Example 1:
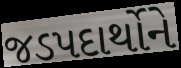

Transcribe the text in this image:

જડપદાર્થોને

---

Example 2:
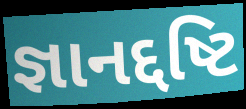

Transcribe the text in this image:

જ્ઞાનદ્દષ્ટિ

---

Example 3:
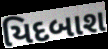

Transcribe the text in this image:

યિદબાશ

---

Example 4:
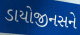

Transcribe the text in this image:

ડાયોજીનસને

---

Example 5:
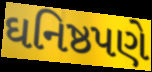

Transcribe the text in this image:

ઘનિષ્ઠપણે